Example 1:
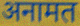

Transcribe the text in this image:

अनामत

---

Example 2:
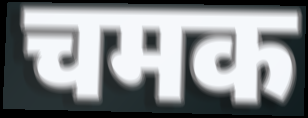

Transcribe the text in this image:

चमक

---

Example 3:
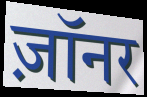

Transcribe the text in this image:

ज़ॉनर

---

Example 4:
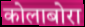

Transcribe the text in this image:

कोलाबोरा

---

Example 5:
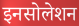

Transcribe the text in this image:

इनसोलेशन